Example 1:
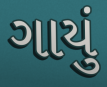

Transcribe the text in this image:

ગાયું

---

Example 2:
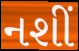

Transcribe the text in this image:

નશીં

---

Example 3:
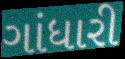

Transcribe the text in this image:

ગાંધારી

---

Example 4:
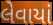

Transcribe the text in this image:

લેવાયાં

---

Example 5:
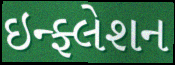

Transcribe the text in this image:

ઇન્ફ્લેશન